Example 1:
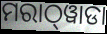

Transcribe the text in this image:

ମରାଠ୍‌ୱାଡା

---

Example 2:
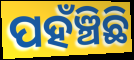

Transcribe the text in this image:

ପହଁଞ୍ଚିଛି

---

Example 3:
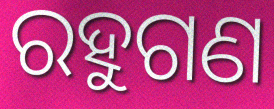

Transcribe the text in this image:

ରହୁଗଣ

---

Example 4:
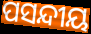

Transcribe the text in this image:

ପସନ୍ଦୀୟ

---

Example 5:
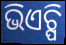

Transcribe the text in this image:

ଭିଏଚ୍ପି